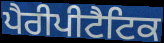
ਪੈਰੀਪੀਟੈਟਿਕ